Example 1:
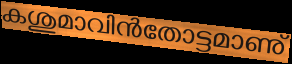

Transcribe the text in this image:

കശുമാവിൻതോട്ടമാണു്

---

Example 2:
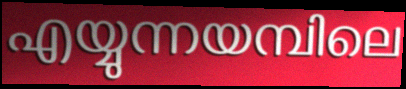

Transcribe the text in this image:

എയ്യുന്നയമ്പിലെ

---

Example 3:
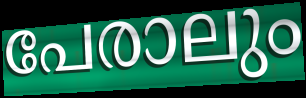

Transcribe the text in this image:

പേരാലും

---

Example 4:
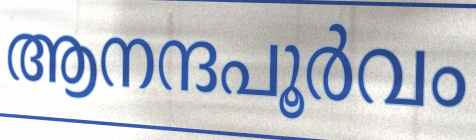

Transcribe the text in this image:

ആനന്ദപൂർവം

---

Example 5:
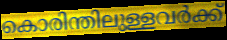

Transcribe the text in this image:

കൊരിന്തിലുള്ളവർക്ക്